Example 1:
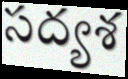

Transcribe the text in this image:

సద్యశ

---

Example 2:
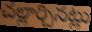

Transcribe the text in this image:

చల్లార్చినట్లు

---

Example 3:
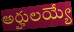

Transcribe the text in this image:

అర్హులయ్యే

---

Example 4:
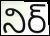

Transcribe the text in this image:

నిర్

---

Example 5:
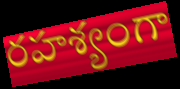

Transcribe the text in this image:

రహశ్యంగా